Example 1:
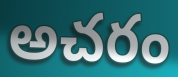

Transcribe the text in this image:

అచరం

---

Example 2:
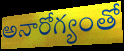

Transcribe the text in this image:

అనారోగ్యంతో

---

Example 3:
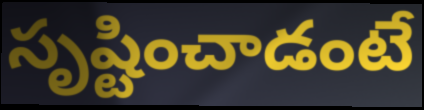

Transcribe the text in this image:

సృష్టించాడంటే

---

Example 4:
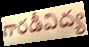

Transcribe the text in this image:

గారడీవిద్య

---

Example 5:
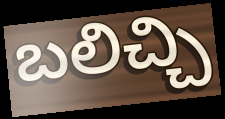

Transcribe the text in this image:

బలిచ్చి